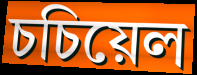
চচিয়েল